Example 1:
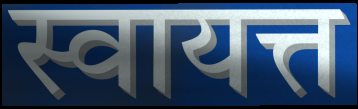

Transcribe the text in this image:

स्वायत्त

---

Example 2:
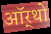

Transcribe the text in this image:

ऑर्थो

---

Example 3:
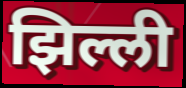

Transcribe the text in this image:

झिल्ली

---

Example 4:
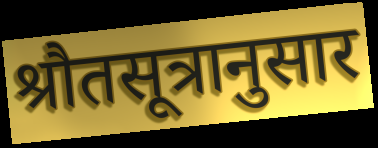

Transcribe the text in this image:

श्रौतसूत्रानुसार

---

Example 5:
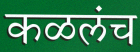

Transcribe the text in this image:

कळलंच